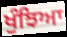
ਖੁੰਝਿਆ